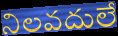
నిలవదులే